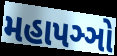
મહાપઞ્ઞો